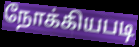
நோக்கியபடி